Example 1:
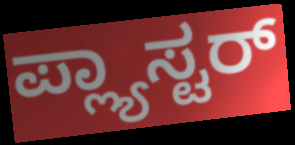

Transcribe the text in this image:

ಪ್ಲ್ಯಾಸ್ಟರ್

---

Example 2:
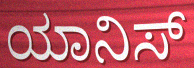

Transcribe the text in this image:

ಯಾನಿಸ್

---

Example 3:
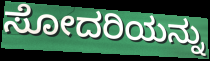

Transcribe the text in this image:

ಸೋದರಿಯನ್ನು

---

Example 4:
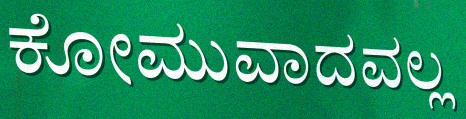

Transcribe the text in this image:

ಕೋಮುವಾದವಲ್ಲ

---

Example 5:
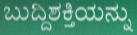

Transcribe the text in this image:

ಬುದ್ದಿಶಕ್ತಿಯನ್ನು